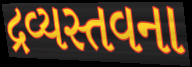
દ્રવ્યસ્તવના